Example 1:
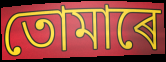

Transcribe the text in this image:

তোমাৰে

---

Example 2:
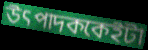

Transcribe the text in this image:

উৎপাদককেইটা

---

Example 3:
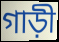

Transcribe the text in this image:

গাড়ী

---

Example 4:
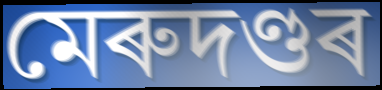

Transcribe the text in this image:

মেৰুদণ্ডৰ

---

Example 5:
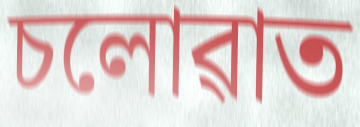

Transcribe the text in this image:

চলোৱাত